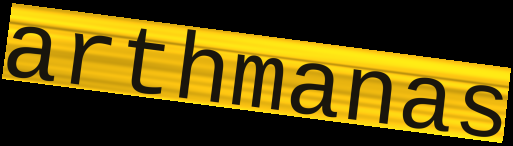
arthmanas